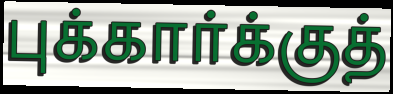
புக்கார்க்குத்